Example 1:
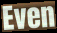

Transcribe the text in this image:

Even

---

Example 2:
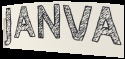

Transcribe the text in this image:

JANVA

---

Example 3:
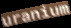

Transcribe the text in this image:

uranium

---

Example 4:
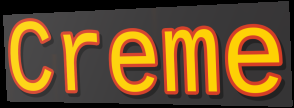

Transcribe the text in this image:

Creme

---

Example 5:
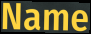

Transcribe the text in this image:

Name